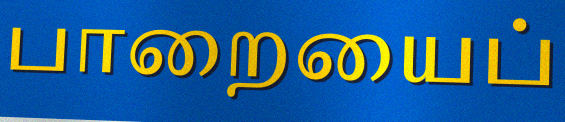
பாறையைப்